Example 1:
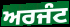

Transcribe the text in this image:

ਅਰਜੰਟ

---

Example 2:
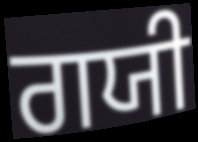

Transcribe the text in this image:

ਗਯੀ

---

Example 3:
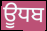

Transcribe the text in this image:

ਊਧਬ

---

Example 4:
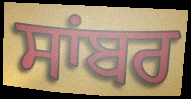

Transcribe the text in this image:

ਸਾਂਬਰ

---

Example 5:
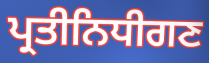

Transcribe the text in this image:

ਪ੍ਰਤੀਨਿਧੀਗਣ